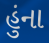
હુંના